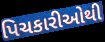
પિચકારીઓથી